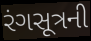
રંગસૂત્રની